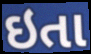
ઇતા